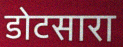
डोटसारा